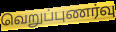
வெறுப்புணர்வு